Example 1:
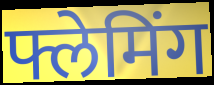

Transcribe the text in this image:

फ्लेमिंग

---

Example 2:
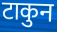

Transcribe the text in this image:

टाकुन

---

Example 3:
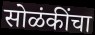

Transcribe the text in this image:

सोळंकींचा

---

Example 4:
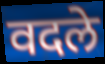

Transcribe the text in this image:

वदले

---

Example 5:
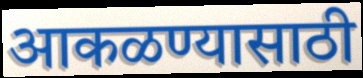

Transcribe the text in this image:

आकळण्यासाठी